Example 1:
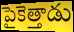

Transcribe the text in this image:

పైకెత్తాడు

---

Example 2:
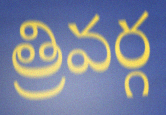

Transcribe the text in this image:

త్రివర్గ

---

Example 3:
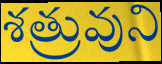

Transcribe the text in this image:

శత్రువుని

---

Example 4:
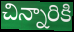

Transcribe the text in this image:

చిన్నారికి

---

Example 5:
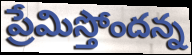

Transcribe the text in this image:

ప్రేమిస్తోందన్న